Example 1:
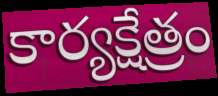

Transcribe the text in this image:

కార్యక్షేత్రం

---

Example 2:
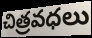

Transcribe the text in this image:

చిత్రవధలు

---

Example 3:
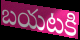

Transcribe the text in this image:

బయటకి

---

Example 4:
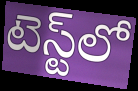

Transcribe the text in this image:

టెస్ట్‌లో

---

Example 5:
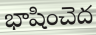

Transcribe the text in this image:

భాషించెద